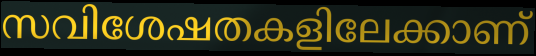
സവിശേഷതകളിലേക്കാണ്